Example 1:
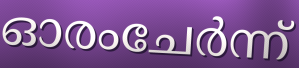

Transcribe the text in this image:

ഓരംചേർന്ന്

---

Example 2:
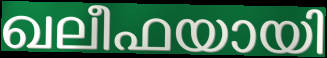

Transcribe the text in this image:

ഖലീഫയായി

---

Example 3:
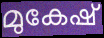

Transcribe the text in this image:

മുകേഷ്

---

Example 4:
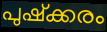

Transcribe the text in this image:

പുഷ്ക്കരം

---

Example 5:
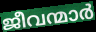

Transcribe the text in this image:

ജീവന്മാർ